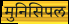
मुनिसिपल